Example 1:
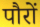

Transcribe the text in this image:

पौरों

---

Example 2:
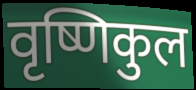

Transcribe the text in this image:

वृष्णिकुल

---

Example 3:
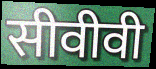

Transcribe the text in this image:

सीवीवी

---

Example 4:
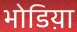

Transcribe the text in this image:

भोडिय़ा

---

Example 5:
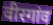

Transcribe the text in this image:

वीरगांव